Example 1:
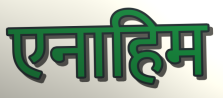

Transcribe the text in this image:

एनाहिम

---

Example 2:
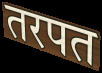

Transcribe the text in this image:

तरपत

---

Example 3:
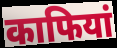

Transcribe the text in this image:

काफियां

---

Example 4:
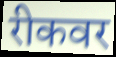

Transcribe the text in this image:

रीकवर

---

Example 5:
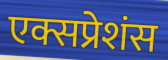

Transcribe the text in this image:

एक्सप्रेशंस